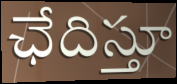
ఛేదిస్తూ